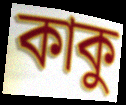
কাকু